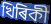
খিৰিকী